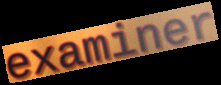
examiner